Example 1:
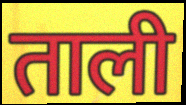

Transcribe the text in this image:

ताली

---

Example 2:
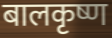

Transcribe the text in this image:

बालकृष्ण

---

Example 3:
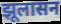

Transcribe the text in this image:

झूलासन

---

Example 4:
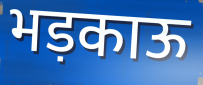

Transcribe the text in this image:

भड़काऊ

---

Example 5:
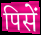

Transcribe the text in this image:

पिसें